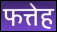
फत्तेह